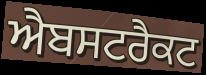
ਐਬਸਟਰੈਕਟ